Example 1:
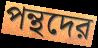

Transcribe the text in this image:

পন্থদের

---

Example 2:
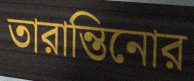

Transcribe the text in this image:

তারান্তিনোর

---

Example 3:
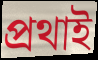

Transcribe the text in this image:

প্রথাই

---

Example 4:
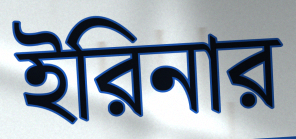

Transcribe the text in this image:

ইরিনার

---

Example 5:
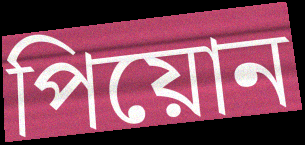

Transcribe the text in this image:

পিয়োন